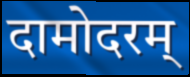
दामोदरम्